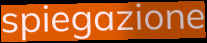
spiegazione